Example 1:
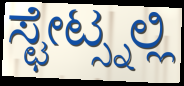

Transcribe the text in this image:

ಸ್ಟೇಟ್ಸ್ನಲ್ಲಿ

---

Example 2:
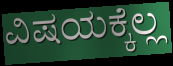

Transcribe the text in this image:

ವಿಷಯಕ್ಕೆಲ್ಲ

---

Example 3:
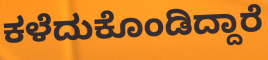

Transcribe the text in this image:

ಕಳೆದುಕೊಂಡಿದ್ದಾರೆ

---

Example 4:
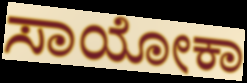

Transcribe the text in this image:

ಸಾಯೋಕಾ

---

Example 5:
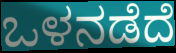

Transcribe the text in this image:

ಒಳನಡೆದೆ